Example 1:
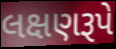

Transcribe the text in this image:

લક્ષણરૂપે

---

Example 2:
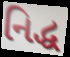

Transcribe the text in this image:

નિદ્ધ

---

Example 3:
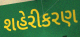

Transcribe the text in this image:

શહેરીકરણ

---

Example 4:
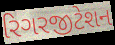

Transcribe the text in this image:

રિગરજીટેશન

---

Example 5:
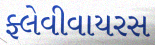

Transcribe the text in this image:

ફ્લેવીવાયરસ